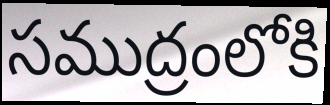
సముద్రంలోకి